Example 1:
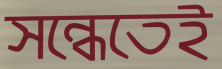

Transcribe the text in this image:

সন্ধেতেই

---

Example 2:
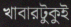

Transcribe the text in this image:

খাবারটুকুই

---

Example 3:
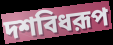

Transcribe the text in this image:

দশবিধরূপ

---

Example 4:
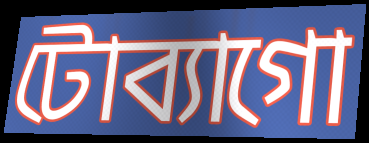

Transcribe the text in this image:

টোব্যাগো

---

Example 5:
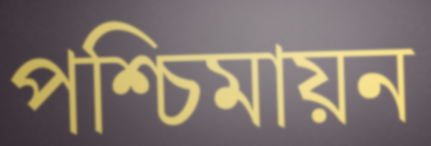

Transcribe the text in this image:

পশ্চিমায়ন